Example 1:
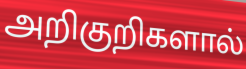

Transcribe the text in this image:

அறிகுறிகளால்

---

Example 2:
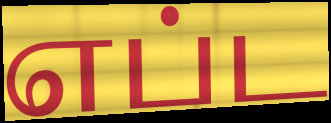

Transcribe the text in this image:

எப்ட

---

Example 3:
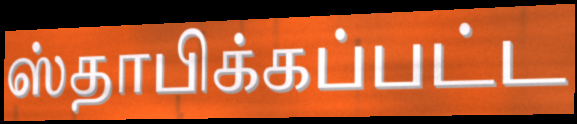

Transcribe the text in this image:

ஸ்தாபிக்கப்பட்ட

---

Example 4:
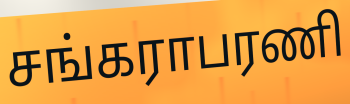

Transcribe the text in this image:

சங்கராபரணி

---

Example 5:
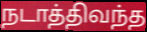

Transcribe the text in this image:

நடாத்திவந்த